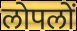
लोपलों